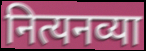
नित्यनव्या